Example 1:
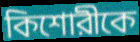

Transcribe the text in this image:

কিশোরীকে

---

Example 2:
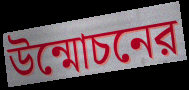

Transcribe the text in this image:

উন্মোচনের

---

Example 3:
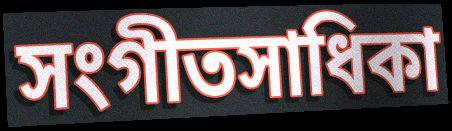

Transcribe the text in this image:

সংগীতসাধিকা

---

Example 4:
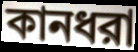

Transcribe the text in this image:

কানধরা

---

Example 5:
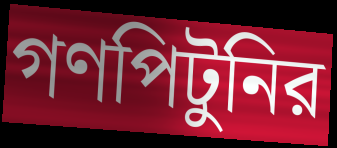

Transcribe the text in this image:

গণপিটুনির